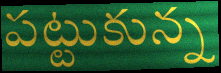
పట్టుకున్న